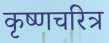
कृष्णचरित्र